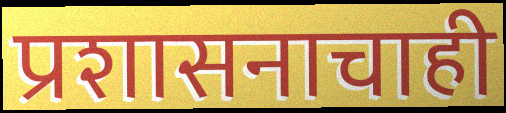
प्रशासनाचाही